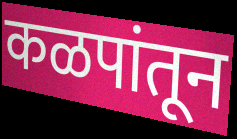
कळपांतून